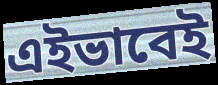
এইভাবেই